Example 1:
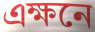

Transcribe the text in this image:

এক্ষনে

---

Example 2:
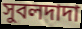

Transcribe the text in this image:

সুবলদাদা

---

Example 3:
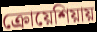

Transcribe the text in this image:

ক্রোয়েশিয়ায়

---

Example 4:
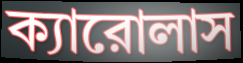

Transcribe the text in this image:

ক্যারোলাস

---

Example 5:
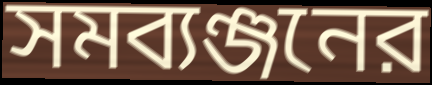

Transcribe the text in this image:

সমব্যঞ্জনের